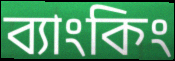
ব্যাংকিং